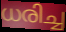
ധരിച്ച